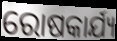
ରୋଷକାର୍ଯ୍ୟ